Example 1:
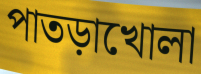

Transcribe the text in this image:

পাতড়াখোলা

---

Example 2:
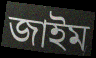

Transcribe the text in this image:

জাইম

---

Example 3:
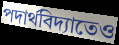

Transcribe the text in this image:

পদার্থবিদ্যাতেও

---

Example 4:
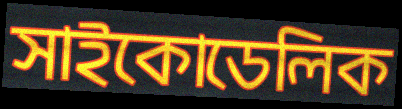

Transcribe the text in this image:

সাইকোডেলিক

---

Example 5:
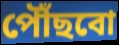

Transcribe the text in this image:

পৌঁছবো